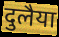
दुलैया